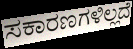
ಸಕಾರಣಗಳಿಲ್ಲದೆ